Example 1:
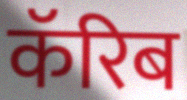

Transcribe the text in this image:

कॅरिब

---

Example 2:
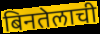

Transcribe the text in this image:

बिनतेलाची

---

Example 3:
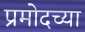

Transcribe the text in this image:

प्रमोदच्या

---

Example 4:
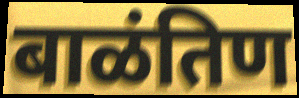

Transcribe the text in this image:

बाळंतिण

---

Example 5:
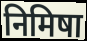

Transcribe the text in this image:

निमिषा